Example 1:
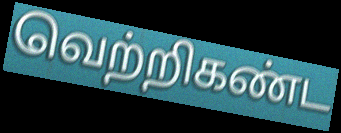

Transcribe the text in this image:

வெற்றிகண்ட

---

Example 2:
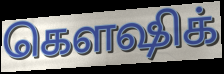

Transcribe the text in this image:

கௌஷிக்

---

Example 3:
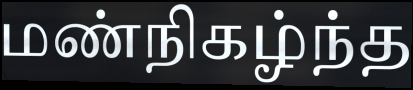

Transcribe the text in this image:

மண்நிகழ்ந்த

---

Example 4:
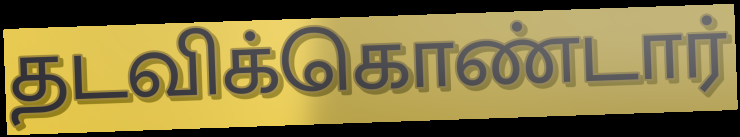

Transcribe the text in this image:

தடவிக்கொண்டார்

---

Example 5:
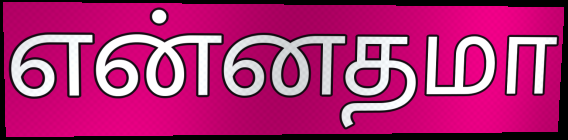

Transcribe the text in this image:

என்னதமா